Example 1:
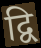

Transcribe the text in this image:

द्वि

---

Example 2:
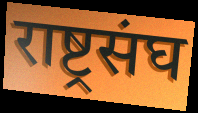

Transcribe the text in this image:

राष्ट्रसंघ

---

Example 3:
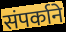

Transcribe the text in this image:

संपर्काने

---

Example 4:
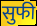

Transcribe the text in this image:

सुफी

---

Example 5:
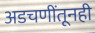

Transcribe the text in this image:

अडचणींतूनही